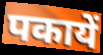
पकायें